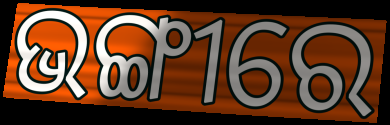
ଭଙ୍ଗୀରେ